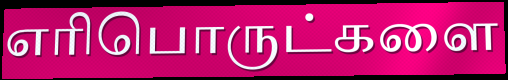
எரிபொருட்களை